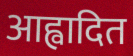
आह्वादित